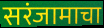
सरंजामाचा